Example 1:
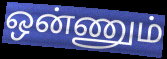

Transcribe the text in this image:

ஒன்ணும்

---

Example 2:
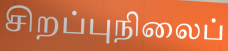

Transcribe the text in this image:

சிறப்புநிலைப்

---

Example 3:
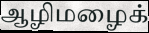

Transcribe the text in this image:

ஆழிமழைக்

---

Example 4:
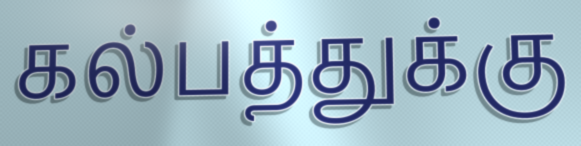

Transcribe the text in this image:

கல்பத்துக்கு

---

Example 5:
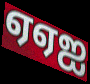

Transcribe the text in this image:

ஏஏஐ